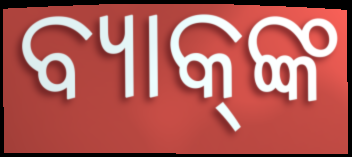
ବ୍ୟାକ୍‍ଙ୍କ